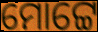
ମୋଟ୍ଟେ